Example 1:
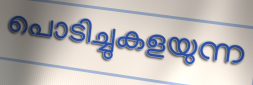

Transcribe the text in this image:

പൊടിച്ചുകളയുന്ന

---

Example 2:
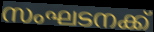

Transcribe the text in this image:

സംഘടനക്ക്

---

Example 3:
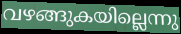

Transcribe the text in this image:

വഴങ്ങുകയില്ലെന്നു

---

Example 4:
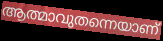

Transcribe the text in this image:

ആത്മാവുതന്നെയാണ്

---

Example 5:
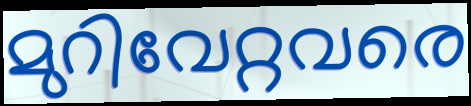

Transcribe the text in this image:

മുറിവേറ്റവരെ